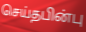
செய்தபின்பு